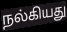
நல்கியது